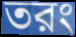
তরং